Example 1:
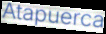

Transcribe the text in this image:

Atapuerca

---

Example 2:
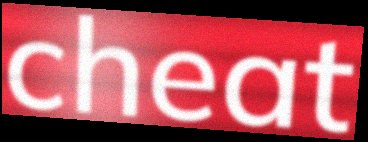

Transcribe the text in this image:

cheat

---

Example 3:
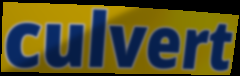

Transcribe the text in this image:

culvert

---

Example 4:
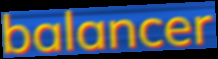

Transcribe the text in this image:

balancer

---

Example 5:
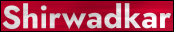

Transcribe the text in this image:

Shirwadkar